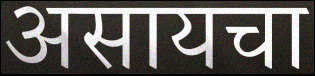
असायचा